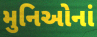
મુનિઓનાં